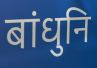
बांधुनि